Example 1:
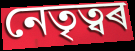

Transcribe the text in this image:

নেতৃত্বৰ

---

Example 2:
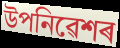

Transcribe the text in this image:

উপনিৱেশৰ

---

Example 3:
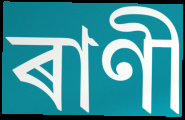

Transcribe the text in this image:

ৰাণী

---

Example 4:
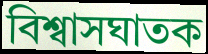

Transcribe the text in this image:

বিশ্বাসঘাতক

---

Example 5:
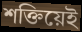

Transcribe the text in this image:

শক্তিয়েই